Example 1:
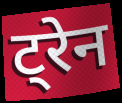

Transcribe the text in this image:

ट्रेन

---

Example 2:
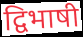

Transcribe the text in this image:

द्विभाषी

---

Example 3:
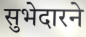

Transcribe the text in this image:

सुभेदारने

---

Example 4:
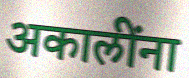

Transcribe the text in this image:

अकालींना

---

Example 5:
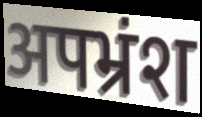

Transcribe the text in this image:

अपभ्रंश